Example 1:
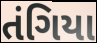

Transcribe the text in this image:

તંગિયા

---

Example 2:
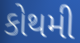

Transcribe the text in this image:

કોથમી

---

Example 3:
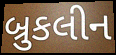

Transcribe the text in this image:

બ્રુકલીન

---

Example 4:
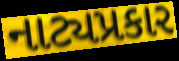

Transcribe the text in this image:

નાટ્યપ્રકાર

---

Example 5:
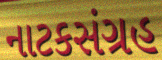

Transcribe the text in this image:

નાટકસંગ્રહ